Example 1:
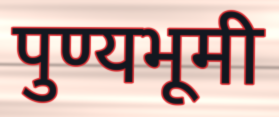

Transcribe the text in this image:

पुण्यभूमी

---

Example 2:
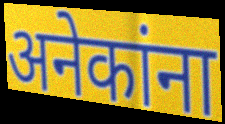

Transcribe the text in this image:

अनेकांना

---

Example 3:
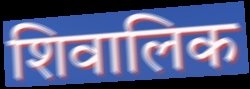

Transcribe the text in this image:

शिवालिक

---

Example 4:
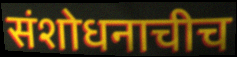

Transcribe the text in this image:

संशोधनाचीच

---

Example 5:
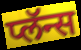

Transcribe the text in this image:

प्लॅन्स